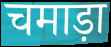
चमाड़ा